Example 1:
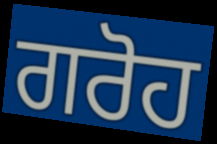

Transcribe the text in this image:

ਗਰੋਹ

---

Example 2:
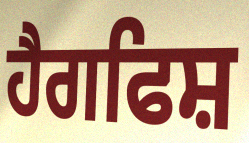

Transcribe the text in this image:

ਹੈਗਫਿਸ਼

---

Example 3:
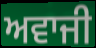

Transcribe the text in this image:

ਅਵਾਜੀ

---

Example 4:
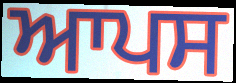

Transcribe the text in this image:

ਆਪਸ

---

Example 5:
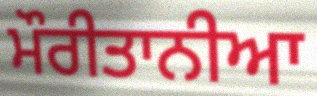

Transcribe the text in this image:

ਮੌਰੀਤਾਨੀਆ